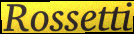
Rossetti